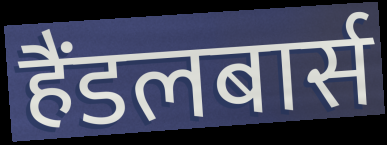
हैंडलबार्स